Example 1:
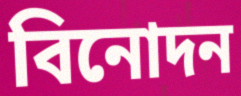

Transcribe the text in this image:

বিনোদন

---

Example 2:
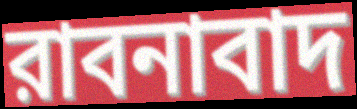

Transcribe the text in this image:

রাবনাবাদ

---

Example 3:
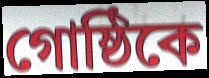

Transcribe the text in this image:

গোষ্ঠিকে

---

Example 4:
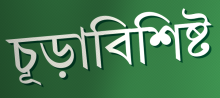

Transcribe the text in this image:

চূড়াবিশিষ্ট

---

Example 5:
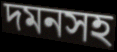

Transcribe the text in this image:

দমনসহ